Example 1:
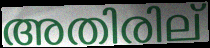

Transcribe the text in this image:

അതിരില്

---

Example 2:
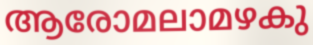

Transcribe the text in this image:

ആരോമലാമഴകു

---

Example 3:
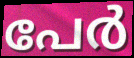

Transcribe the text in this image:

പേർ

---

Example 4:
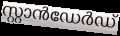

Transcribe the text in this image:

സ്റ്റാൻഡേർഡ്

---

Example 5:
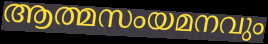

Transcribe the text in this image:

ആത്മസംയമനവും